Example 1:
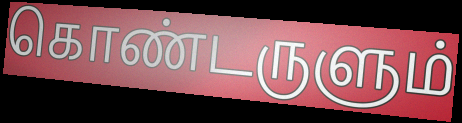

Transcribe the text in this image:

கொண்டருளும்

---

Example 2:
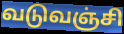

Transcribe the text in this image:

வடுவஞ்சி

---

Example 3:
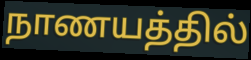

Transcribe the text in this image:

நாணயத்தில்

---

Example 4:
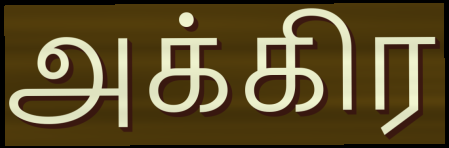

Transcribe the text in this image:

அக்கிர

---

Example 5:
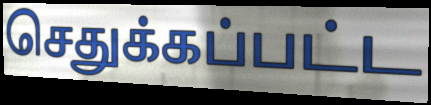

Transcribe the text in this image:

செதுக்கப்பட்ட